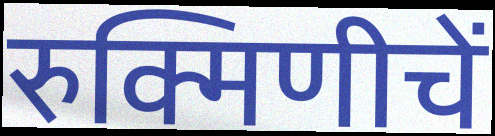
रुक्मिणीचें